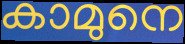
കാമുനെ